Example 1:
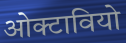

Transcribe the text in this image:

ओक्टावियो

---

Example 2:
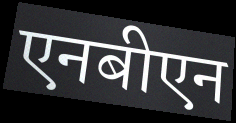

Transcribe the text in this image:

एनबीएन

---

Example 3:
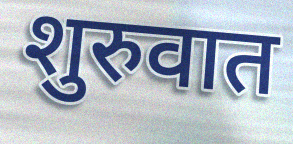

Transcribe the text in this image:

शुरुवात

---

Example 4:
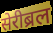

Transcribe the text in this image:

सेरीब्रल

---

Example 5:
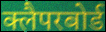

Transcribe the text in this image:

क्लैपरबोर्ड